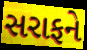
સરાફને